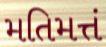
મતિમત્તં